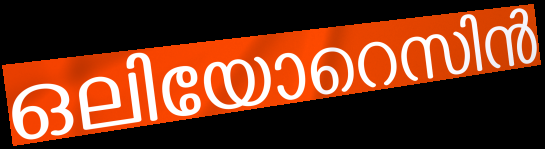
ഒലിയോറെസിൻ